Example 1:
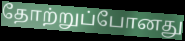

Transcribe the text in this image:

தோற்றுப்போனது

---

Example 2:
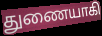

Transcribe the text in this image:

துணையாகி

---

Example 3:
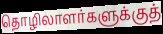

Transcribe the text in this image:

தொழிலாளர்களுக்குத்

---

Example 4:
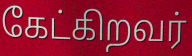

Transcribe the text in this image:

கேட்கிறவர்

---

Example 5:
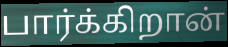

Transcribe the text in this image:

பார்க்கிறான்